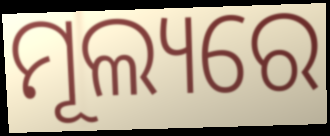
ମୂଲ୍ୟରେ